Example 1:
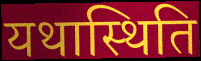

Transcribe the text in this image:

यथास्थिति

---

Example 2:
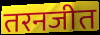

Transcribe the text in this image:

तरनजीत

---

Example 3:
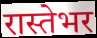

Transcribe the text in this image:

रास्तेभर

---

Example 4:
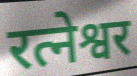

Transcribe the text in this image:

रत्नेश्वर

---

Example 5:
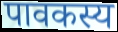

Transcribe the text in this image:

पावकस्य